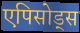
एपिसोड्स